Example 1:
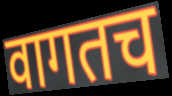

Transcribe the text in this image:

वागतच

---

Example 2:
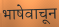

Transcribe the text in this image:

भाषेवाचून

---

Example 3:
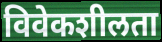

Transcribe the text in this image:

विवेकशीलता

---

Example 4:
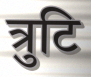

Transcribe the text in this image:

त्रुटि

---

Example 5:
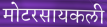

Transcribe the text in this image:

मोटरसायकली